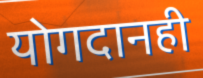
योगदानही